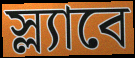
স্ল্যাবে